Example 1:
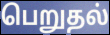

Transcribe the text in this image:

பெறுதல்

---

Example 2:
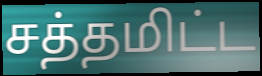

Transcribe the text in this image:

சத்தமிட்ட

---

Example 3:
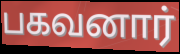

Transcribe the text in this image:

பகவனார்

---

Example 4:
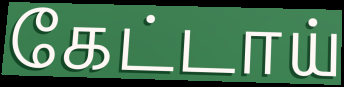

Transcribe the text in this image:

கேட்டாய்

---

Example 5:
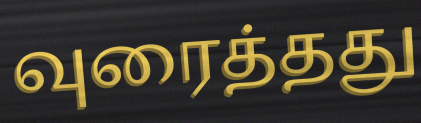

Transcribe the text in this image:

வுரைத்தது